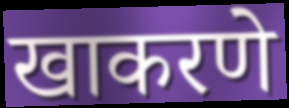
खाकरणे